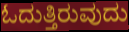
ಓದುತ್ತಿರುವುದು